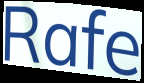
Rafe